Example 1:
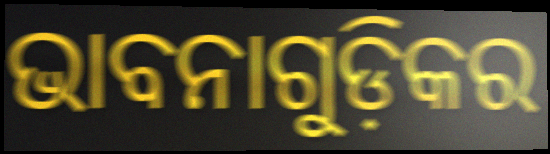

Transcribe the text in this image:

ଭାବନାଗୁଡ଼ିକର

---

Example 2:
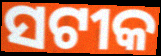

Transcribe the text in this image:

ସଟୀକ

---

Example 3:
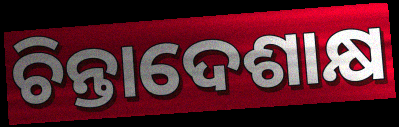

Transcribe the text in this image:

ଚିନ୍ତାଦେଶାକ୍ଷ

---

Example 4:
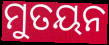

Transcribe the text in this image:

ମୁତୟନ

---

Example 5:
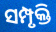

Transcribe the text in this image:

ସମ୍ପୃକ୍ତି